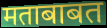
मताबाबत